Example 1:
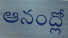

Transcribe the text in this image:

ఆనంద్లో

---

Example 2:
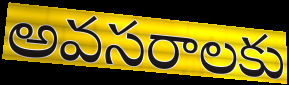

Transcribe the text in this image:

అవసరాలకు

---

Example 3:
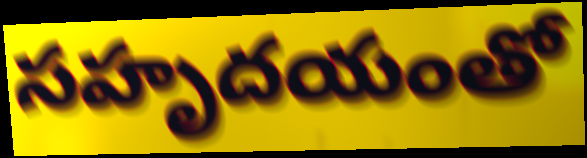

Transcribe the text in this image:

సహృదయంతో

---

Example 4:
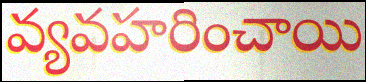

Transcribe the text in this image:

వ్యవహరించాయి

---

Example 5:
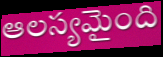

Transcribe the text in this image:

ఆలస్యమైంది